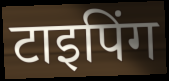
टाइपिंग